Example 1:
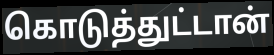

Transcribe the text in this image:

கொடுத்துட்டான்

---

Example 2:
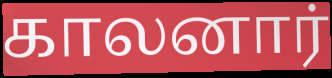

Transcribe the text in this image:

காலனார்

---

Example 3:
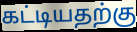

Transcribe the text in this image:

கட்டியதற்கு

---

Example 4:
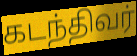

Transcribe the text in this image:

கடந்திவர்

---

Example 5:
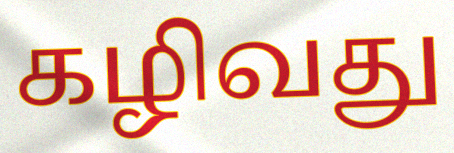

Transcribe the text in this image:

கழிவது